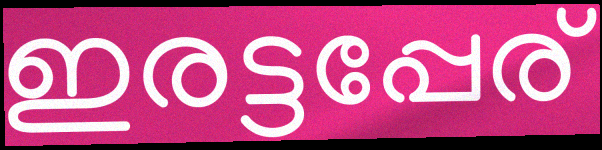
ഇരട്ടപ്പേര്